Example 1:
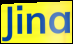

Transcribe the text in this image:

Jina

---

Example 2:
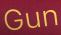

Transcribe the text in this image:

Gun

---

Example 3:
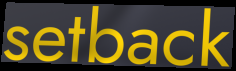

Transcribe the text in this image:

setback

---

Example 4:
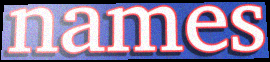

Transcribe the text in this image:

names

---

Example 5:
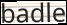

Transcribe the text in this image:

badle